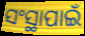
ସଂସ୍ଥାପାଇଁ